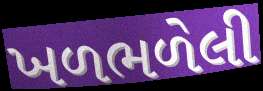
ખળભળેલી